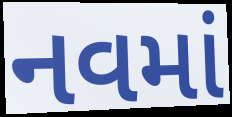
નવમાં